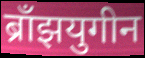
ब्राँझयुगीन